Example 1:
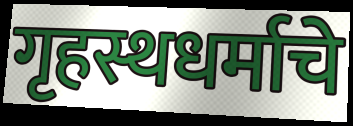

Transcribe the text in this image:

गृहस्थधर्माचे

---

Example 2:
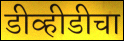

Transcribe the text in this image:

डीव्हीडीचा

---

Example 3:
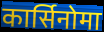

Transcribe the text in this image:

कार्सिनोमा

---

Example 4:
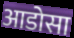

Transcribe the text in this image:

आडोसा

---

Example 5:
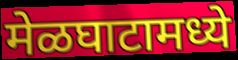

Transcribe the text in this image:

मेळघाटामध्ये